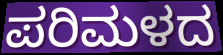
ಪರಿಮಳದ